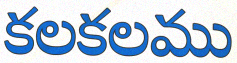
కలకలము